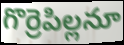
గొర్రెపిల్లనూ